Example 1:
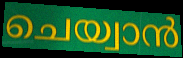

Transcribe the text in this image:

ചെയ്വാൻ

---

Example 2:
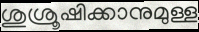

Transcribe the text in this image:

ശുശ്രൂഷിക്കാനുമുള്ള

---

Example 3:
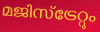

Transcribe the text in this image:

മജിസ്ട്രേറ്റും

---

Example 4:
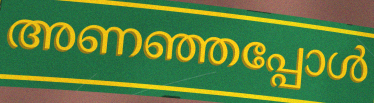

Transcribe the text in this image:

അണഞ്ഞപ്പോൾ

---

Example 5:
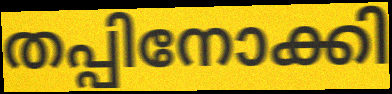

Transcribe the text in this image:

തപ്പിനോക്കി